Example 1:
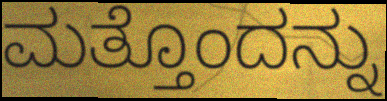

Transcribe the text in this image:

ಮತ್ತೊಂದನ್ನು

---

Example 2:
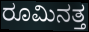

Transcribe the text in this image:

ರೂಮಿನತ್ತ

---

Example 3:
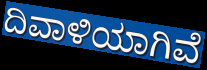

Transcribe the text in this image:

ದಿವಾಳಿಯಾಗಿವೆ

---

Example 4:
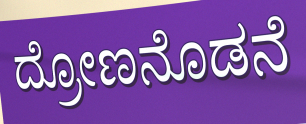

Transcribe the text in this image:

ದ್ರೋಣನೊಡನೆ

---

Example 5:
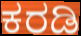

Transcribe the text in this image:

ಕರಡಿ